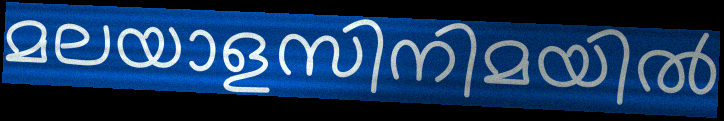
മലയാളസിനിമയിൽ